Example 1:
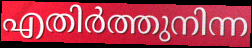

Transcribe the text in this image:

എതിർത്തുനിന്ന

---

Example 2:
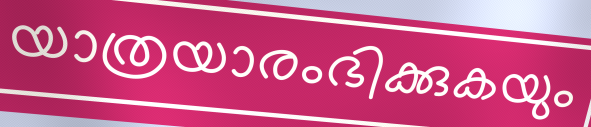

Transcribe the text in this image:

യാത്രയാരംഭിക്കുകയും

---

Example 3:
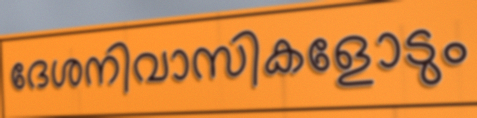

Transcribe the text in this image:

ദേശനിവാസികളോടും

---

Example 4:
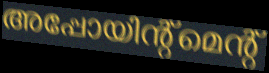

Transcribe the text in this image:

അപ്പോയിന്റ്മെന്റ്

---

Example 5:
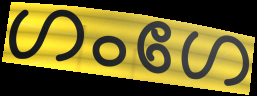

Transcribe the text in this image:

ഗംഗേ